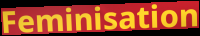
Feminisation